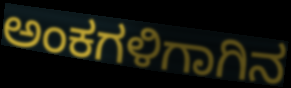
ಅಂಕಗಳಿಗಾಗಿನ